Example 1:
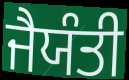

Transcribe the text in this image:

ਜੈਯੰਤੀ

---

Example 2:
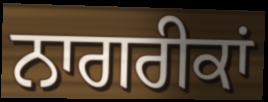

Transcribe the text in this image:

ਨਾਗਰੀਕਾਂ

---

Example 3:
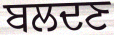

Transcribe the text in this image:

ਬਲਦਣ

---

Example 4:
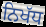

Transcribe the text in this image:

ਨਿਖੱਧ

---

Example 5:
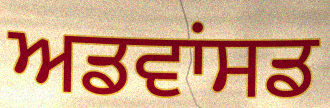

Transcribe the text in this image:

ਅਡਵਾਂਸਡ